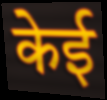
केई